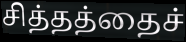
சித்தத்தைச்